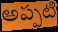
అప్పటి